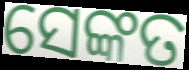
ସେଙ୍କତ